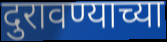
दुरावण्याच्या